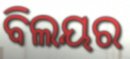
ବିଲୟର